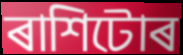
ৰাশিটোৰ